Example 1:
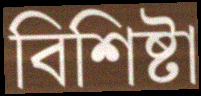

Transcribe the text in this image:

বিশিষ্টা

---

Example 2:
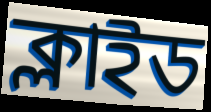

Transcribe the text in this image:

ক্লাইড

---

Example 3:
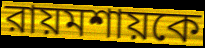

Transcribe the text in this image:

রায়মশায়কে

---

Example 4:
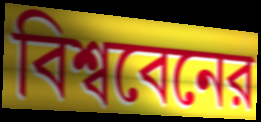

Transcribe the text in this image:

বিশ্ববেনের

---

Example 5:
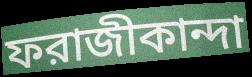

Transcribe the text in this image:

ফরাজীকান্দা